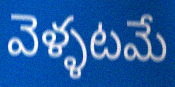
వెళ్ళటమే